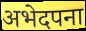
अभेदपना